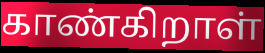
காண்கிறாள்